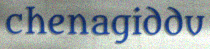
chenagiddu